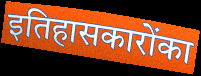
इतिहासकारोंका